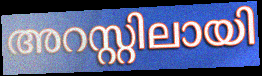
അറസ്റ്റിലായി